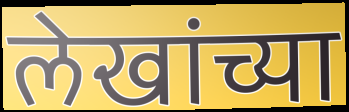
लेखांच्या